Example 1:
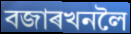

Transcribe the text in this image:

বজাৰখনলৈ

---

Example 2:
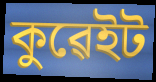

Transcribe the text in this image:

কুৱেইট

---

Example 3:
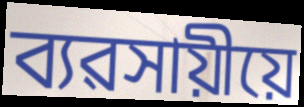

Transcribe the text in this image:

ব্যৱসায়ীয়ে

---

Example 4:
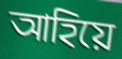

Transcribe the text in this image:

আহিয়ে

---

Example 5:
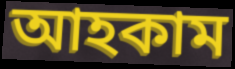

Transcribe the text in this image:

আহকাম